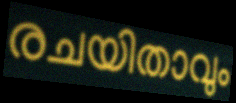
രചയിതാവും